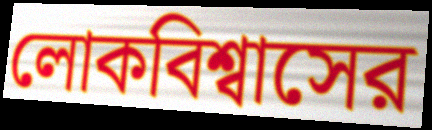
লোকবিশ্বাসের